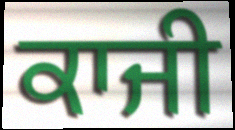
ਕਾਜੀ